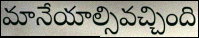
మానేయాల్సివచ్చింది